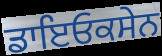
ਡਾਇਓਕਸੇਨ